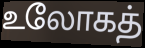
உலோகத்